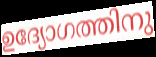
ഉദ്യോഗത്തിനു